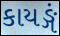
કાયઙ્ગં